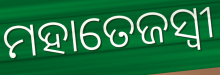
ମହାତେଜସ୍ୱୀ